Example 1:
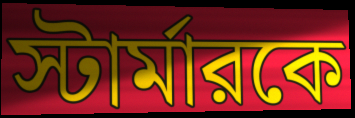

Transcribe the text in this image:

স্টার্মারকে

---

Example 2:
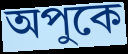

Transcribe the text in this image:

অপুকে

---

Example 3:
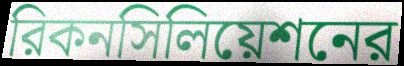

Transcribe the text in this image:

রিকনসিলিয়েশনের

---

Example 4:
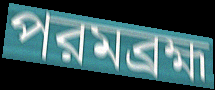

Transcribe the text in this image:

পরমব্রহ্ম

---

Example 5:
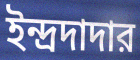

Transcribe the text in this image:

ইন্দ্রদাদার